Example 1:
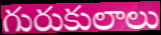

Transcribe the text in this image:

గురుకులాలు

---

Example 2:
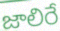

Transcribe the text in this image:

జాలిరే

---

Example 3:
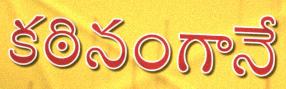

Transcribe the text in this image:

కఠినంగానే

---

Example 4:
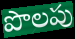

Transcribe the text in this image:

పొలపు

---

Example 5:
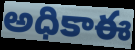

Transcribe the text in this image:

అధికాఈ